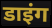
डाइंग